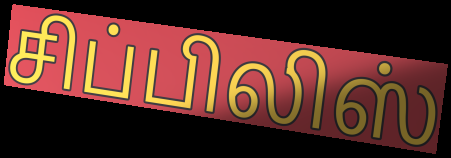
சிப்பிலிஸ்